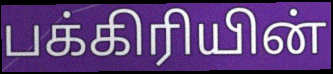
பக்கிரியின்